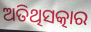
ଅତିଥିସତ୍କାର